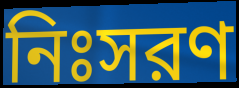
নিঃসরণ